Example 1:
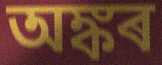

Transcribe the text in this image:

অঙ্কৰ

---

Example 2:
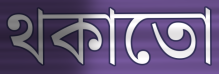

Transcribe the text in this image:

থকাতো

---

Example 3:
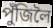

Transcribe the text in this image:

পুঁজিলৈ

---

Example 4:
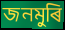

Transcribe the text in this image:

জনমুৰি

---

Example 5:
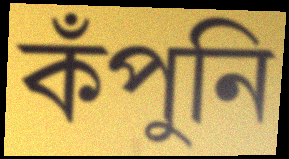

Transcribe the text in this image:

কঁপুনি